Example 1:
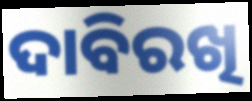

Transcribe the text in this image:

ଦାବିରଖି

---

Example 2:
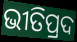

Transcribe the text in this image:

ଭୀତିପ୍ରଦ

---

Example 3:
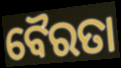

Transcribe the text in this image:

ବୈରତା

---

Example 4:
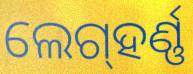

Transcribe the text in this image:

ଲେଗ୍‌ହର୍ଣ୍ଣ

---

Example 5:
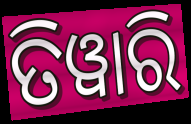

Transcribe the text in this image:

ତିୱାରି